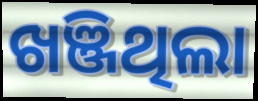
ଖଞ୍ଜିଥିଲା